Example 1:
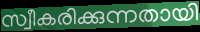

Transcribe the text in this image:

സ്വീകരിക്കുന്നതായി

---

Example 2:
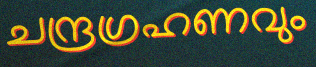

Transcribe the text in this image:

ചന്ദ്രഗ്രഹണവും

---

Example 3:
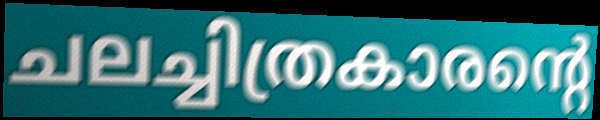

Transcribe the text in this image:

ചലച്ചിത്രകാരന്റെ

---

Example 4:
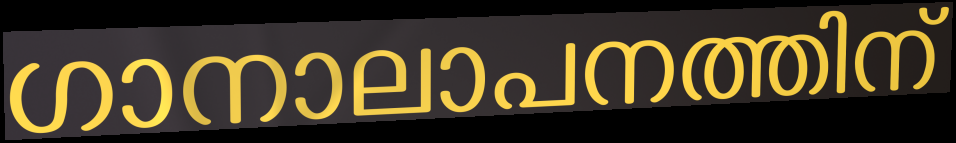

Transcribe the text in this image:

ഗാനാലാപനത്തിന്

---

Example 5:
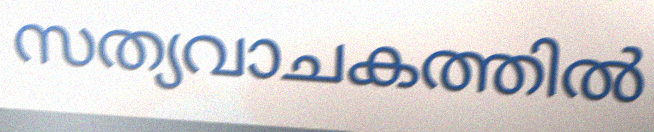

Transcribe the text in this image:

സത്യവാചകത്തിൽ